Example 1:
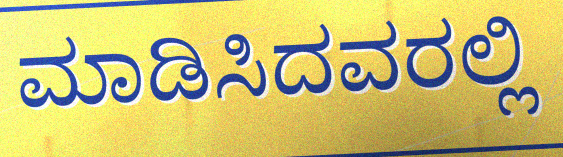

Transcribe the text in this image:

ಮಾಡಿಸಿದವರಲ್ಲಿ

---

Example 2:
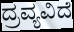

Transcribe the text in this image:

ದ್ರವ್ಯವಿದೆ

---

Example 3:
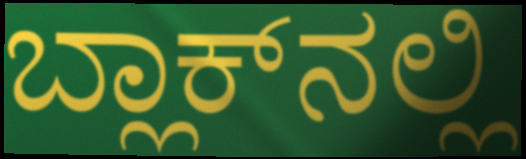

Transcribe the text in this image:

ಬ್ಲಾಕ್‌ನಲ್ಲಿ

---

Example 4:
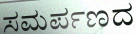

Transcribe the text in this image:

ಸಮರ್ಪಣದ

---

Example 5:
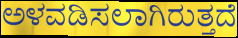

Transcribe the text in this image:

ಅಳವಡಿಸಲಾಗಿರುತ್ತದೆ